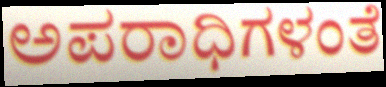
ಅಪರಾಧಿಗಳಂತೆ